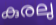
കുരലു